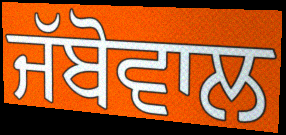
ਜੱਬੋਵਾਲ